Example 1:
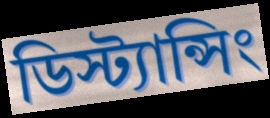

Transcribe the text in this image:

ডিস্ট্যান্সিং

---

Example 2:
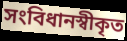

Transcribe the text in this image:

সংবিধানস্বীকৃত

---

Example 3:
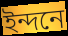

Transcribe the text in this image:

ইন্দনে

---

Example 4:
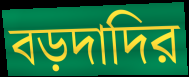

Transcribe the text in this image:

বড়দাদির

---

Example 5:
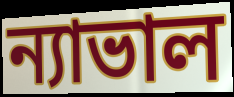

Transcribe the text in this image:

ন্যাভাল